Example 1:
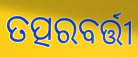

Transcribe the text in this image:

ତତ୍ପରବର୍ତ୍ତୀ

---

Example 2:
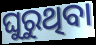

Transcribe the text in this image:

ଘୁରୁଥିବା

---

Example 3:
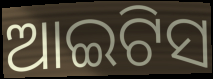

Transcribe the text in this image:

ଆଇଟିସ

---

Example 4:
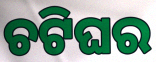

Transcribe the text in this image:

ଚଟିଘର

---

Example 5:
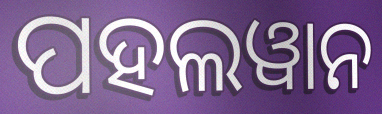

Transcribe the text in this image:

ପହଲୱାନ